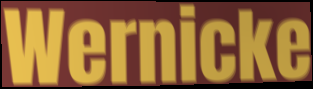
Wernicke